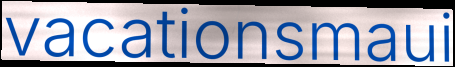
vacationsmaui